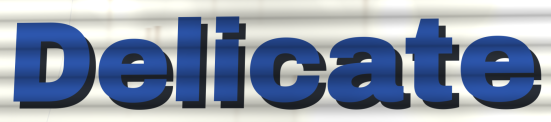
Delicate